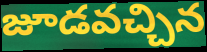
జూడవచ్చిన